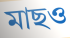
মাছও